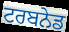
ਟਰਬਨੇਡ